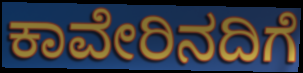
ಕಾವೇರಿನದಿಗೆ